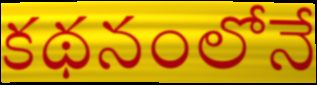
కథనంలోనే